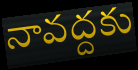
నావద్దకు